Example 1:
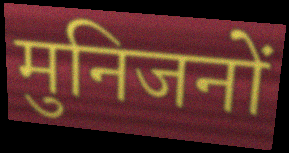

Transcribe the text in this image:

मुनिजनों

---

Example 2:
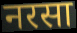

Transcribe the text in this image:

नरसा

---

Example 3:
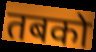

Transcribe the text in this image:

तबको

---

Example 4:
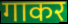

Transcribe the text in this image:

गाकर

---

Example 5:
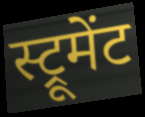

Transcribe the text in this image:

स्ट्रूमेंट